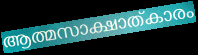
ആത്മസാക്ഷാത്കാരം